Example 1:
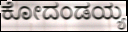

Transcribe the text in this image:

ಕೋದಂಡಯ್ಯ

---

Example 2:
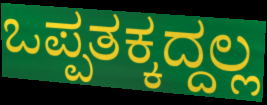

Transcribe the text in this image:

ಒಪ್ಪತಕ್ಕದ್ದಲ್ಲ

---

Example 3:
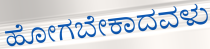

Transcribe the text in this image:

ಹೋಗಬೇಕಾದವಳು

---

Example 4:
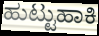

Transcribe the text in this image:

ಹುಟ್ಟುಹಾಕಿ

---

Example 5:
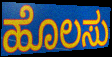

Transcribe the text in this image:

ಹೊಲಸು